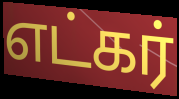
எட்கர்